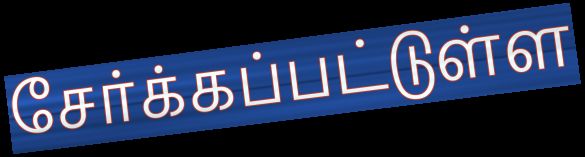
சேர்க்கப்பட்டுள்ள